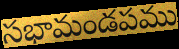
సభామండపము